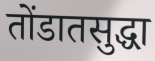
तोंडातसुद्धा